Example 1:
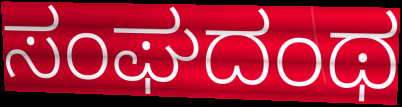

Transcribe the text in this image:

ಸಂಘದಂಥ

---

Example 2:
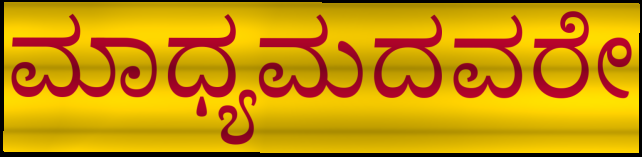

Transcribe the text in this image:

ಮಾಧ್ಯಮದವರೇ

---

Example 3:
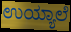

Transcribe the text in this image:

ಉಯ್ಯಾಲೆ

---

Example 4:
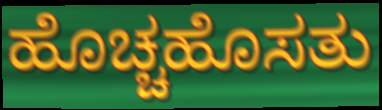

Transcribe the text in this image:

ಹೊಚ್ಚಹೊಸತು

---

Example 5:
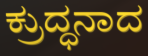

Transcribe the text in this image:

ಕ್ರುದ್ಧನಾದ